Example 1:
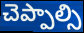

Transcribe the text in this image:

చెప్పాల్సి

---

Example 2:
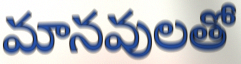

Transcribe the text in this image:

మానవులతో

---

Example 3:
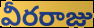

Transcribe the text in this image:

వీరరాజు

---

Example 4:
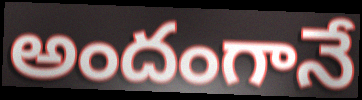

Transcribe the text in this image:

అందంగానే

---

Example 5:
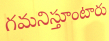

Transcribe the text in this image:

గమనిస్తూంటారు